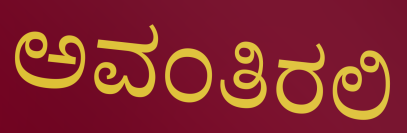
ಅವಂತಿರಲಿ